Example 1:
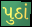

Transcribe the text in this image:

પુઠાં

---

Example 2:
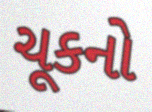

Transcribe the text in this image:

ચૂકનો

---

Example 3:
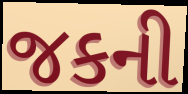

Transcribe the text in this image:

જકની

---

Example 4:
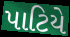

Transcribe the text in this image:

પાટિયે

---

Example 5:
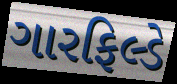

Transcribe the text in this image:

ગારફિલ્ડે